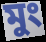
মুং